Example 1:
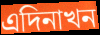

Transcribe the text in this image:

এদিনাখন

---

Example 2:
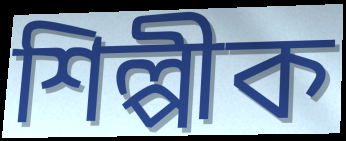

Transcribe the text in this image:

শিল্পীক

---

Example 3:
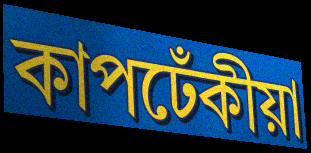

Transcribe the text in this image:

কাপঢেঁকীয়া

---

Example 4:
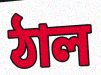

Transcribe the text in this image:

ঠাল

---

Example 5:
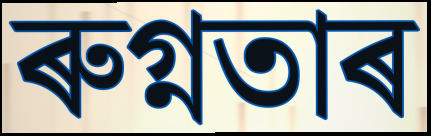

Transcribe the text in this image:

ৰুগ্নতাৰ